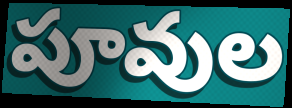
పూవుల